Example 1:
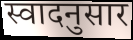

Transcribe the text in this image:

स्वादनुसार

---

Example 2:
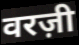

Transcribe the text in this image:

वरज़ी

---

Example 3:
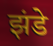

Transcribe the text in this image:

झंडे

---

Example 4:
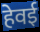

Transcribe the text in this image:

हेवई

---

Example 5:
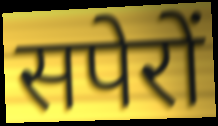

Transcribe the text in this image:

सपेरों